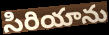
సిరియాను